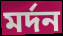
মৰ্দন